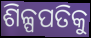
ଶିଳ୍ପପତିକୁ